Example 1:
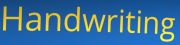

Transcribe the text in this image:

Handwriting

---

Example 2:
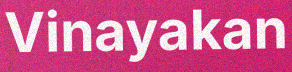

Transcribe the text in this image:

Vinayakan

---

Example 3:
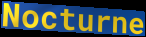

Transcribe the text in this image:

Nocturne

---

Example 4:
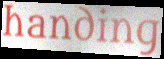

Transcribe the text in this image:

handing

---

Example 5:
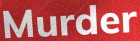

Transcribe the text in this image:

Murder